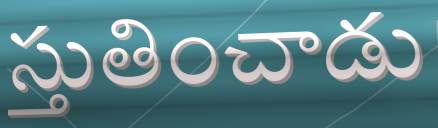
స్తుతించాడు